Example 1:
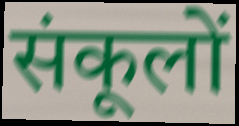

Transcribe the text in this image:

संकूलों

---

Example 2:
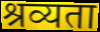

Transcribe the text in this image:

श्रव्यता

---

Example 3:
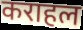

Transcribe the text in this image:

कराहल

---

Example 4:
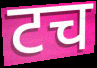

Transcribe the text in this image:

टच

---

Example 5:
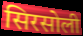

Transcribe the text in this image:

सिरसोली